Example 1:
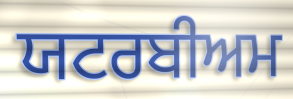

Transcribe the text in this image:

ਯਟਰਬੀਅਮ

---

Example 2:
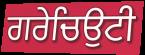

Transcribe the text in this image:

ਗਰੇਚਿਉਟੀ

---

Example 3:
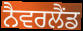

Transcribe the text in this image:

ਨੈਵਰਲੈਂਡ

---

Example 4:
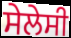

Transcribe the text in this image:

ਸੇਲੇਸੀ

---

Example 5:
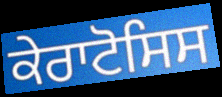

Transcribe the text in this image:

ਕੇਰਾਟੋਸਿਸ